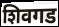
शिवगड